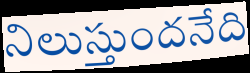
నిలుస్తుందనేది